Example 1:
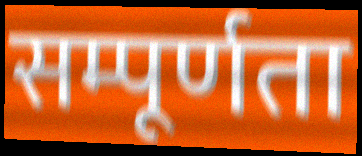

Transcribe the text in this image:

सम्पूर्णता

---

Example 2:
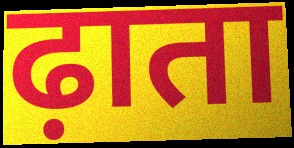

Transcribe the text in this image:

ढ़ाता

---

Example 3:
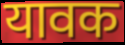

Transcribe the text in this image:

यावक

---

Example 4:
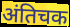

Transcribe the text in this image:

अंतिचक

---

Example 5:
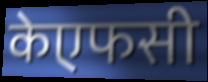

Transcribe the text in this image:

केएफसी